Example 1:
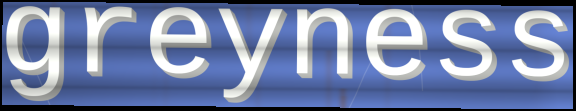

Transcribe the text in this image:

greyness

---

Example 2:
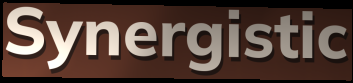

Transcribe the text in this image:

Synergistic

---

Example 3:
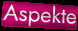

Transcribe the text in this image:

Aspekte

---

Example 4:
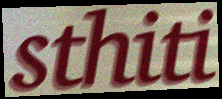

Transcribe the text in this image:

sthiti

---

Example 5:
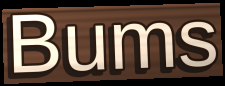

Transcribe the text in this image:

Bums